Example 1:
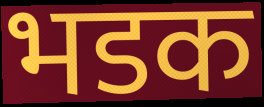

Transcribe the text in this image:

भडक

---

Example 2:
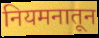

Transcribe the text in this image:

नियमनातून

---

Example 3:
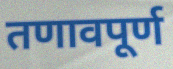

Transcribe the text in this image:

तणावपूर्ण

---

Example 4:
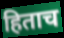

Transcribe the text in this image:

हिताच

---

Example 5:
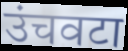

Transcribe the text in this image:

उंचवटा